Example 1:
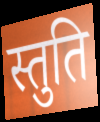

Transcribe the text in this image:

स्तुति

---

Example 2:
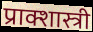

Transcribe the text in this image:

प्राक्शास्त्री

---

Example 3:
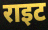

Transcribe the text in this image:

राइट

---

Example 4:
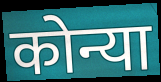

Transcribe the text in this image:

कोन्या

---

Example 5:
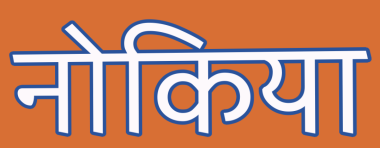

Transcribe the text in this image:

नोकिया